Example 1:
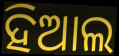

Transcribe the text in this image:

ହିଆଲ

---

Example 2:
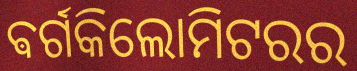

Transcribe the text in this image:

ଵର୍ଗକିଲୋମିଟରର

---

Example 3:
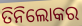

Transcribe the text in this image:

ତିନିଲୋକର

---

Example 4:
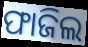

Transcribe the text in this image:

ଫାଜିଲ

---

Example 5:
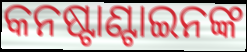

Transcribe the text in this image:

କନଷ୍ଟାଣ୍ଟାଇନଙ୍କ